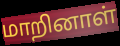
மாறினாள்